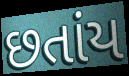
છતાંય